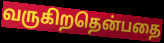
வருகிறதென்பதை